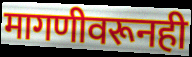
मागणीवरूनही